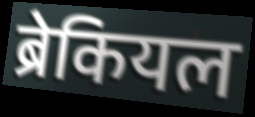
ब्रेकियल